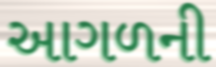
આગળની